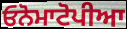
ਓਨੋਮਾਟੋਪੀਆ